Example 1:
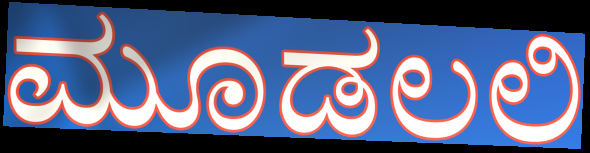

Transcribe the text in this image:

ಮೂಡಲಲಿ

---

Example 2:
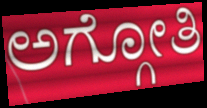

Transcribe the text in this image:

ಅಗ್ಗೋತಿ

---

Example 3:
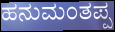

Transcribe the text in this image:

ಹನುಮಂತಪ್ಪ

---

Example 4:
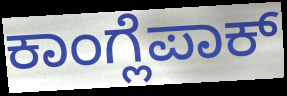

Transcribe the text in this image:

ಕಾಂಗ್ಲೆಪಾಕ್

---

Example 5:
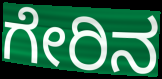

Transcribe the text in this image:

ಗೇರಿನ